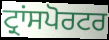
ਟ੍ਰਾਂਸਪੋਰਟਰ